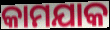
କାମଯାକ